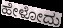
ಹೇಳೋದು